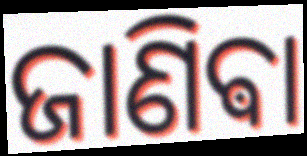
ଜାଣିଵା